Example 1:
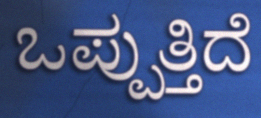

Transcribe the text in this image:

ಒಪ್ಪುತ್ತಿದೆ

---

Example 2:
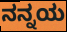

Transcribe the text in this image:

ನನ್ನಯ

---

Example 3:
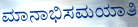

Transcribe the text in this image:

ಮಾನಾಭಿಸಮಯಾತಿ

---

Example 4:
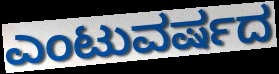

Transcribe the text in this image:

ಎಂಟುವರ್ಷದ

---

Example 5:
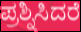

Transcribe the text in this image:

ಪ್ರಶ್ನಿಸಿದರೆ